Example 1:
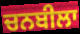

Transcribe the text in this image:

ਚਨਬੀਲਾ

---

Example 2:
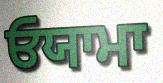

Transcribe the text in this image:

ਓਯਾਮਾ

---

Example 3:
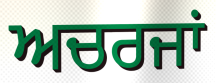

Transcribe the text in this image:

ਅਚਰਜਾਂ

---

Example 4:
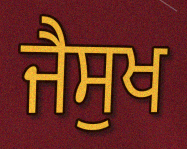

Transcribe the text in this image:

ਜੈਸੁਖ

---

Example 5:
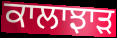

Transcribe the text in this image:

ਕਾਲਾਝਾਡ਼